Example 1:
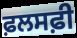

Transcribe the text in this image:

ਫ਼ਲਸਫ਼ੀ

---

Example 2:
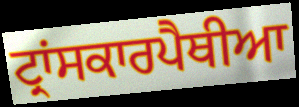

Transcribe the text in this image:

ਟ੍ਰਾਂਸਕਾਰਪੈਥੀਆ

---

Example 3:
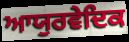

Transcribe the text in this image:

ਆਯੁਰਵੇਦਿਕ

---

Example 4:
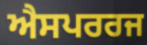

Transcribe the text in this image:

ਐਸਪਰਰਜ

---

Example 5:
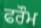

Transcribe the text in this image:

ਫਰੌਮ